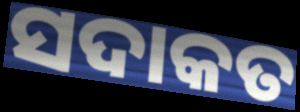
ସଦାକତ